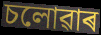
চলোৱাৰ